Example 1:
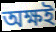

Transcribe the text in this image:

অক্ষই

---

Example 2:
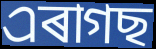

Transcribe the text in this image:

এৰাগছ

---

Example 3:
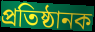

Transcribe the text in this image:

প্ৰতিষ্ঠানক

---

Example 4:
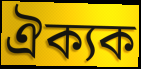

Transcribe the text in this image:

ঐক্যক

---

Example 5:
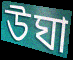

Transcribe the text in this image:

উঘা